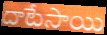
దాటేసాయి